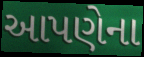
આપણેના